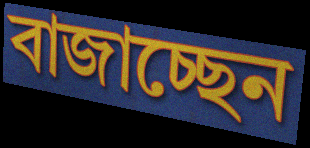
বাজাচ্ছেন